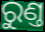
ରୁଣ୍ତ